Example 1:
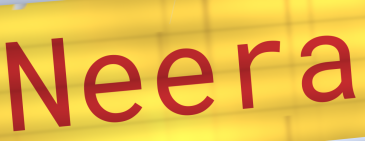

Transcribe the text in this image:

Neera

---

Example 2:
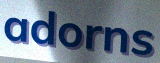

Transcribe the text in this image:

adorns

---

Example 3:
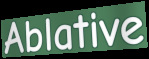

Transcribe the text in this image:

Ablative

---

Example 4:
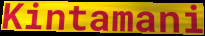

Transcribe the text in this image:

Kintamani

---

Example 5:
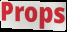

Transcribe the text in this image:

Props